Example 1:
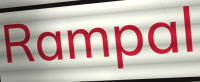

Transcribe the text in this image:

Rampal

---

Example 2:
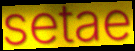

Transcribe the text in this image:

setae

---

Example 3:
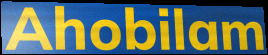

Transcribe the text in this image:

Ahobilam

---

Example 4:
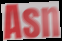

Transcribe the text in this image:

Asn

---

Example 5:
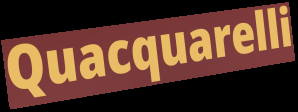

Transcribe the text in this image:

Quacquarelli